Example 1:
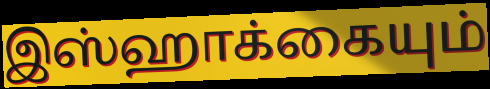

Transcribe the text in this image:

இஸ்ஹாக்கையும்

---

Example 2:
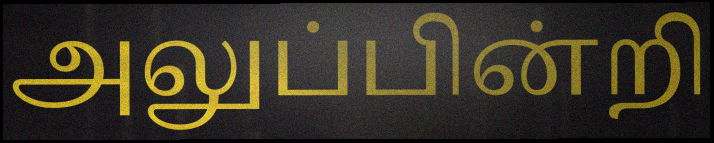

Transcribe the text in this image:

அலுப்பின்றி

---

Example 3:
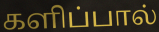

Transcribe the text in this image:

களிப்பால்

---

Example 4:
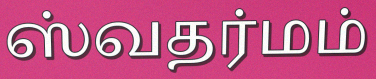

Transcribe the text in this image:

ஸ்வதர்மம்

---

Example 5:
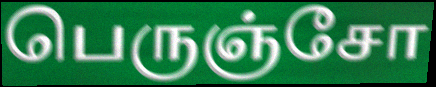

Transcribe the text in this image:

பெருஞ்சோ